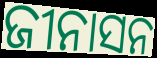
ଜୀନାସନ